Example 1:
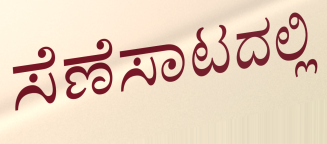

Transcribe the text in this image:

ಸೆಣೆಸಾಟದಲ್ಲಿ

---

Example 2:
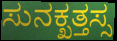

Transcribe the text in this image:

ಸುನಕ್ಖತ್ತಸ್ಸ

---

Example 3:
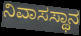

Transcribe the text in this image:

ನಿವಾಸಸ್ಥಾನ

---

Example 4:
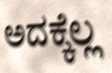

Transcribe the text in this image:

ಅದಕ್ಕೆಲ್ಲ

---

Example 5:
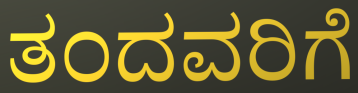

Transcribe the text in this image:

ತಂದವರಿಗೆ